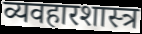
व्यवहारशास्त्र